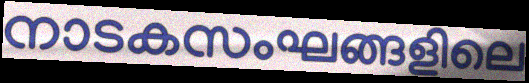
നാടകസംഘങ്ങളിലെ